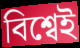
বিশ্বেই